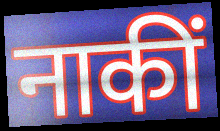
नाकीं